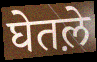
घेतल़े